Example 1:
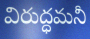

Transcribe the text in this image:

విరుద్ధమనీ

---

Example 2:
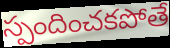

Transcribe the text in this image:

స్పందించకపోతే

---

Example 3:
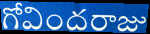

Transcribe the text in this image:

గోవిందరాజు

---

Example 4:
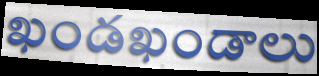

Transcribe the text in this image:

ఖండఖండాలు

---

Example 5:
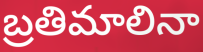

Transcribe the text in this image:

బ్రతిమాలినా